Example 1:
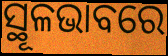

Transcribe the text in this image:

ସ୍ଥୂଳଭାବରେ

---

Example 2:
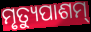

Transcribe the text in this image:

ମୃତ୍ୟୁପାଶମ୍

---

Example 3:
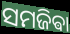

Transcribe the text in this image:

ସମଜିଵା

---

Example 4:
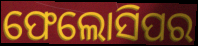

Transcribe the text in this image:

ଫେଲୋସିପର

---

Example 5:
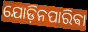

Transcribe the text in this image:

ଯୋଡ଼ିନପାରିଵା